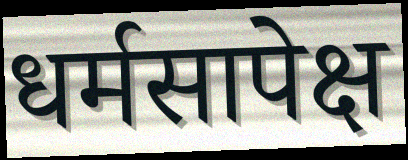
धर्मसापेक्ष